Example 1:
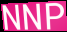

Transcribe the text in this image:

NNP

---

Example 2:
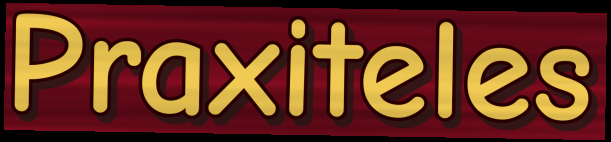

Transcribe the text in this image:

Praxiteles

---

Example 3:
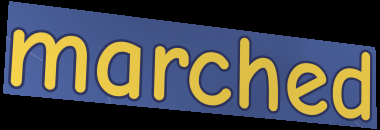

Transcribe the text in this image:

marched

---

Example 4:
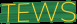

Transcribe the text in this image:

TEWS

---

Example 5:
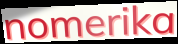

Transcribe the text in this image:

nomerika